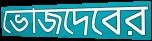
ভোজদেবের